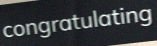
congratulating